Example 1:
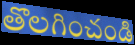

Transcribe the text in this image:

తొలగించండి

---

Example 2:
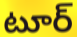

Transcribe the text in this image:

టూర్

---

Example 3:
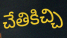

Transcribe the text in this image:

చేతికిచ్చి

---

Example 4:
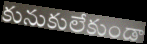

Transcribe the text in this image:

కునుకులేకుండా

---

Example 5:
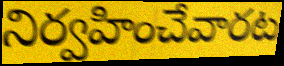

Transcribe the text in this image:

నిర్వహించేవారట